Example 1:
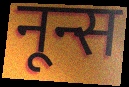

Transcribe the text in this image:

नून्स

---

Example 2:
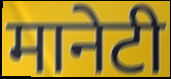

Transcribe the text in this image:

मानेटी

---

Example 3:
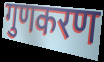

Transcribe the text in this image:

गुणकरण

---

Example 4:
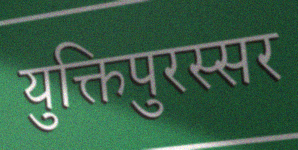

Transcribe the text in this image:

युक्तिपुरस्सर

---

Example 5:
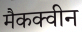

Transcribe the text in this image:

मैकक्वीन